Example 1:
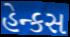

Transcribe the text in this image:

હેન્કસ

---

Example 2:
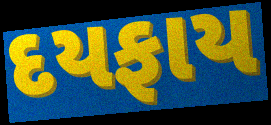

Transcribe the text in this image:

દયફાય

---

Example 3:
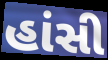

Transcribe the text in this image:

હાંસી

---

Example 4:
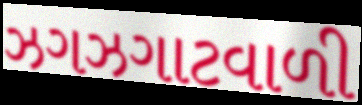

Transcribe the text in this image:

ઝગઝગાટવાળી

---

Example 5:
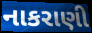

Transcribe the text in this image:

નાકરાણી